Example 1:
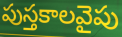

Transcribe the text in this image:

పుస్తకాలవైపు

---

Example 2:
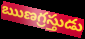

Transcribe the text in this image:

ఋణగ్రస్తుడు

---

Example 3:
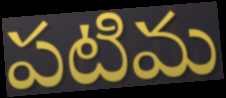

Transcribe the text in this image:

పటిమ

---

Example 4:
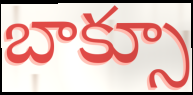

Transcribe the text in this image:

బాక్సూ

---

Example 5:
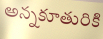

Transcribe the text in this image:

అన్నకూతురికి